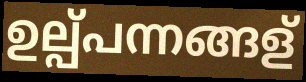
ഉല്പ്പന്നങ്ങള്